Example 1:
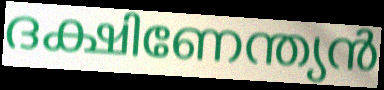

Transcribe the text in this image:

ദക്ഷിണേന്ത്യൻ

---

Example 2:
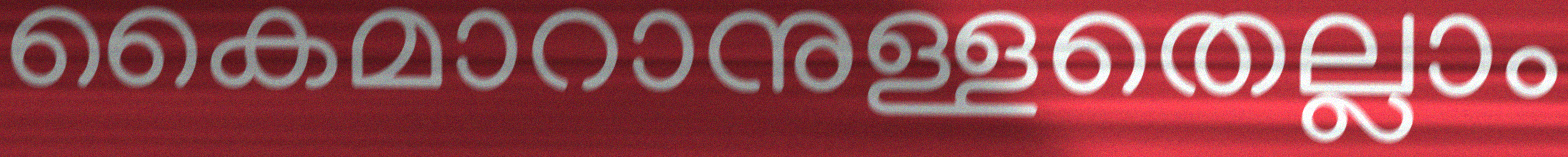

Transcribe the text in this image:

കൈമാറാനുള്ളതെല്ലാം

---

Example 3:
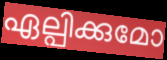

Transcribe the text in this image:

ഏല്പിക്കുമോ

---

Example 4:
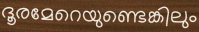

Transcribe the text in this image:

ദൂരമേറെയുണ്ടെങ്കിലും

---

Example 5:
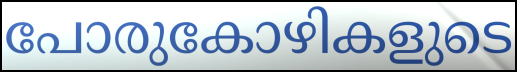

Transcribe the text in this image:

പോരുകോഴികളുടെ